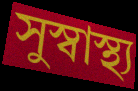
সুস্বাস্থ্য